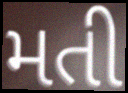
મતી